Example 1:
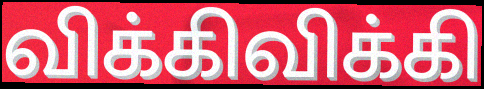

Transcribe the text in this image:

விக்கிவிக்கி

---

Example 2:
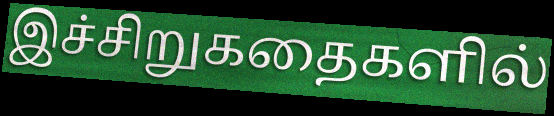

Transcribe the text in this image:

இச்சிறுகதைகளில்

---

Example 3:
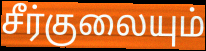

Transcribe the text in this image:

சீர்குலையும்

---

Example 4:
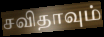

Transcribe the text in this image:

சவிதாவும்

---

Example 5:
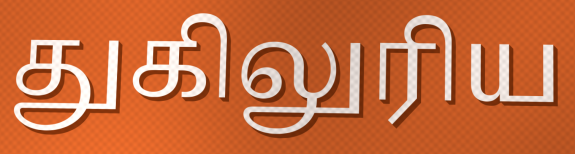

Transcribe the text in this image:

துகிலுரிய